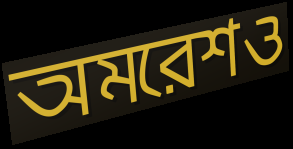
অমরেশও